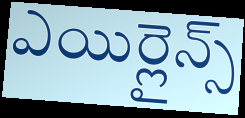
ఎయిర్లైన్స్